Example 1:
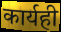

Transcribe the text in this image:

कार्यही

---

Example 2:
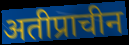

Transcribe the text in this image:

अतीप्राचीन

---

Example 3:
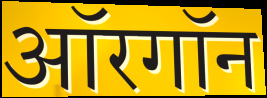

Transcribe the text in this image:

ऑरगॉन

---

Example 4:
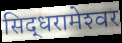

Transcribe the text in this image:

सिद्धरामेश्वर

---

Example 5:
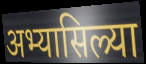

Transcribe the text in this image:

अभ्यासिल्या